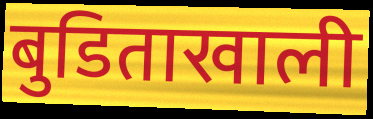
बुडिताखाली